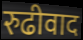
रुढीवाद